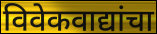
विवेकवाद्यांचा